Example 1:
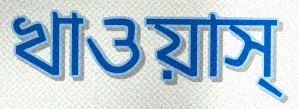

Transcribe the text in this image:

খাওয়াস্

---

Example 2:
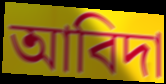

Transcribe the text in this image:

আবিদা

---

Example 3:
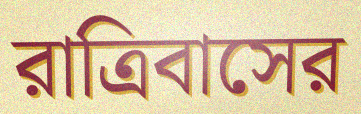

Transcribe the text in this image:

রাত্রিবাসের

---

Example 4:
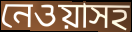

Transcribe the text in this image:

নেওয়াসহ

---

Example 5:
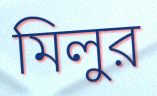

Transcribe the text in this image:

মিলুর